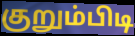
குறும்பிடி